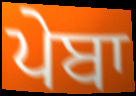
ਪੇਬਾ